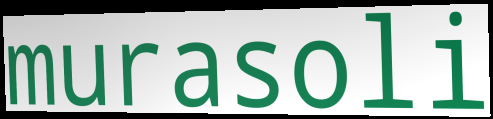
murasoli